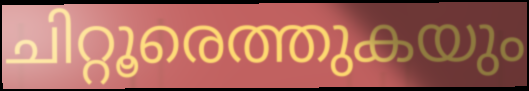
ചിറ്റൂരെത്തുകയും